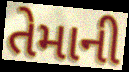
તેમાની